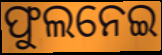
ଫୁଲନେଇ